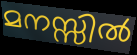
മനസ്സിൽ